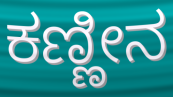
ಕಣ್ಣೀನ